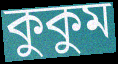
কুকুম